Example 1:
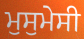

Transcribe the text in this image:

ਮੁਸੁਮੇਸੀ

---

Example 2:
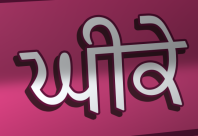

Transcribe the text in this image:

ਘੀਕੇ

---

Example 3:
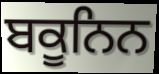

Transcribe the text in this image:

ਬਕੂਨਿਨ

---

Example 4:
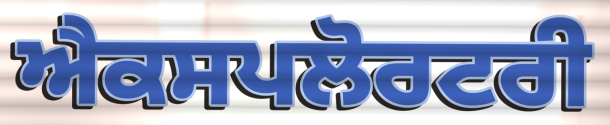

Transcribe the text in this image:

ਐਕਸਪਲੋਰਟਰੀ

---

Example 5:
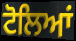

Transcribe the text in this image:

ਟੋਲਿਆਂ